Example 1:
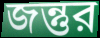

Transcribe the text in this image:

জন্তুর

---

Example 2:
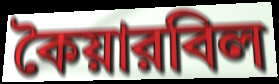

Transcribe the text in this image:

কৈয়ারবিল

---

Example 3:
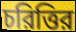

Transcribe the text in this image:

চরিত্তির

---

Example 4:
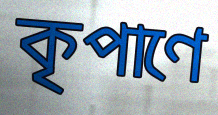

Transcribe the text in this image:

কৃপাণে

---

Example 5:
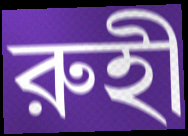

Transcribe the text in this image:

রুহী